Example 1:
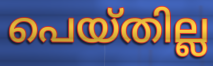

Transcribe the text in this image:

പെയ്തില്ല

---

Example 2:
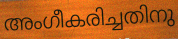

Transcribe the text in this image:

അംഗീകരിച്ചതിനു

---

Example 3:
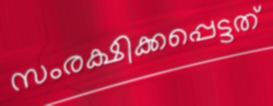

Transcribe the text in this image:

സംരക്ഷിക്കപ്പെട്ടത്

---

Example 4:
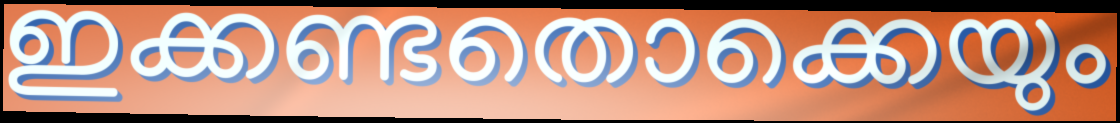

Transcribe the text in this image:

ഇക്കണ്ടതൊക്കെയും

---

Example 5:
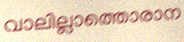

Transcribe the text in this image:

വാലില്ലാത്തൊരാന